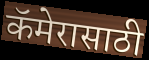
कॅमेरासाठी